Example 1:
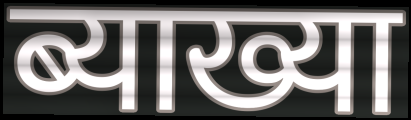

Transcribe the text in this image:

ब्याख्या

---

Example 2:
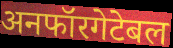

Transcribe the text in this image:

अनफॉरगेटेबल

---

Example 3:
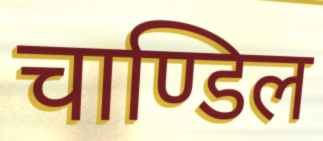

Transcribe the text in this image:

चाण्डिल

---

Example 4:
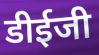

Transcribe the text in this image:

डीईजी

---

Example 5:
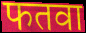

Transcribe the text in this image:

फतवा